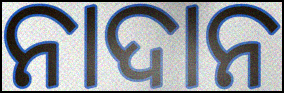
ନାଦାନ